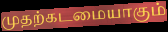
முதற்கடமையாகும்